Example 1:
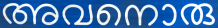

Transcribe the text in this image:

അവനൊരു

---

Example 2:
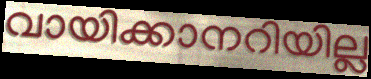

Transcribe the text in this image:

വായിക്കാനറിയില്ല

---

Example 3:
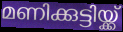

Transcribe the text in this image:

മണിക്കുട്ടിയ്ക്ക്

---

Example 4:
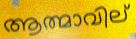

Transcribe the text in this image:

ആത്മാവില്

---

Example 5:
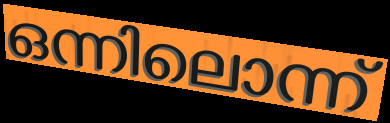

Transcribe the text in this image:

ഒന്നിലൊന്ന്